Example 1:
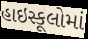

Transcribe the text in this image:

હાઇસ્કૂલોમાં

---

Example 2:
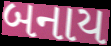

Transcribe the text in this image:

બનાય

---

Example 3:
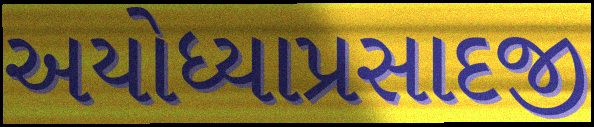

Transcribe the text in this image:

અયોધ્યાપ્રસાદજી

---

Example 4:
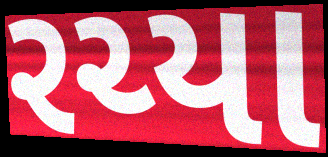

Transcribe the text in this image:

રચ્યા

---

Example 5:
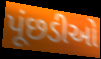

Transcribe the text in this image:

પૂંછડીઓ